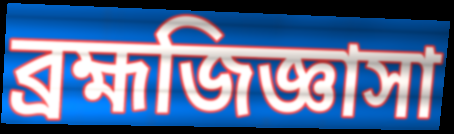
ব্রহ্মজিজ্ঞাসা